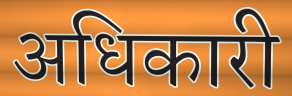
अधिकारी